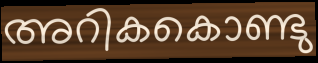
അറികകൊണ്ടു